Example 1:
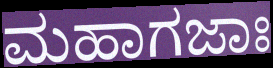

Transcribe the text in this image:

ಮಹಾಗಜಾಃ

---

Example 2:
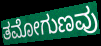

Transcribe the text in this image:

ತಮೋಗುಣವು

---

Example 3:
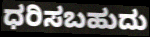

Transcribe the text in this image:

ಧರಿಸಬಹುದು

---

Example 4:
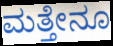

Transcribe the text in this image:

ಮತ್ತೇನೂ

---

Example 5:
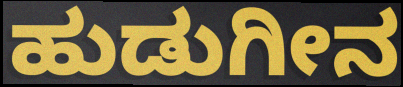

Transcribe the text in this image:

ಹುಡುಗೀನ